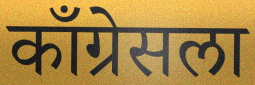
काँग्रेसला